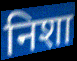
निशा